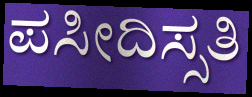
ಪಸೀದಿಸ್ಸತಿ